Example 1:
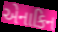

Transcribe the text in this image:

એનાકિન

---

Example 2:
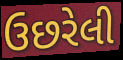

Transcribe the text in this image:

ઉછરેલી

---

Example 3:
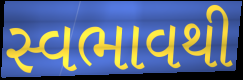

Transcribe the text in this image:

સ્વભાવથી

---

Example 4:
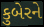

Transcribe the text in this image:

કુબેરને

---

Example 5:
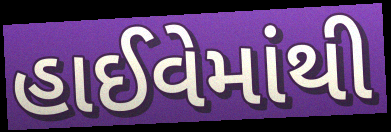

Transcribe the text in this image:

હાઈવેમાંથી